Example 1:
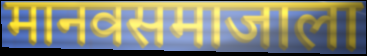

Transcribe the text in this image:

मानवसमाजाला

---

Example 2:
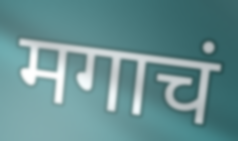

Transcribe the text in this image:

मगाचं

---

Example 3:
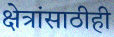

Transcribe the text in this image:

क्षेत्रांसाठीही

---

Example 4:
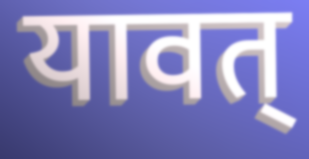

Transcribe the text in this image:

यावत्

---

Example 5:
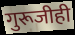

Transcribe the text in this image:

गुरूजीही